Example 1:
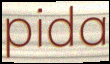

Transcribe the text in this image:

pida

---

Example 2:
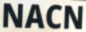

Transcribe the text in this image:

NACN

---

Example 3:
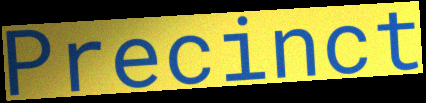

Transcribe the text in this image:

Precinct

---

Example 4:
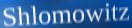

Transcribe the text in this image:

Shlomowitz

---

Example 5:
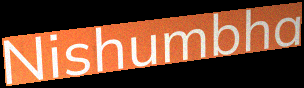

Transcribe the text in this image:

Nishumbha